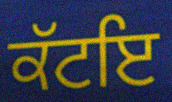
ਕੱਟਇ